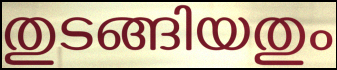
തുടങ്ങിയതും